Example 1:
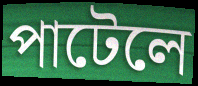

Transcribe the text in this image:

পাটেলে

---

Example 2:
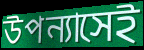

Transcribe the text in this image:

উপন্যাসেই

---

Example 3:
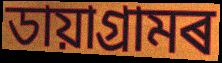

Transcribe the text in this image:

ডায়াগ্ৰামৰ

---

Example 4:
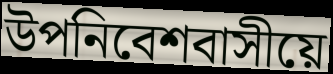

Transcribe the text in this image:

উপনিবেশবাসীয়ে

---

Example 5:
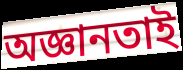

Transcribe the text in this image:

অজ্ঞানতাই